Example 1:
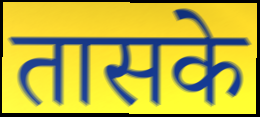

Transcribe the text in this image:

तासके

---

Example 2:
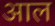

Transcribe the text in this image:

आल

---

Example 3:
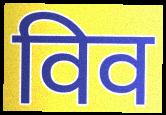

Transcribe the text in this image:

विव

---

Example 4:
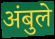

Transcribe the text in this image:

अंबुले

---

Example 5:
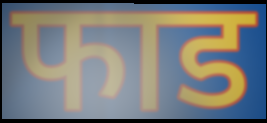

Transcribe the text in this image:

फाड